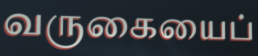
வருகையைப்